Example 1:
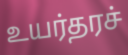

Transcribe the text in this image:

உயர்தரச்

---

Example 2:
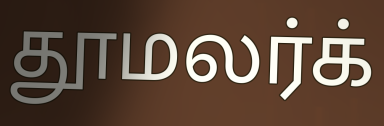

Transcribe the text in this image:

தூமலர்க்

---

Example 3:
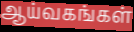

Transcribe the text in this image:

ஆய்வகங்கள்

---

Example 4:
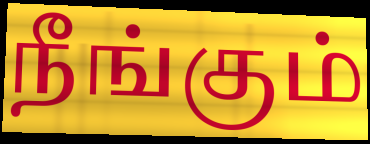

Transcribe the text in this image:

நீங்கும்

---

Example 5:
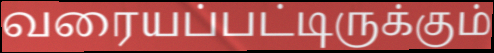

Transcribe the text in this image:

வரையப்பட்டிருக்கும்